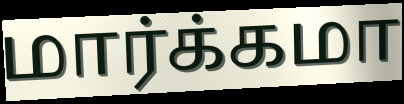
மார்க்கமா